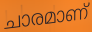
ചാരമാണ്